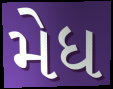
મેધ